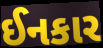
ઈનકાર